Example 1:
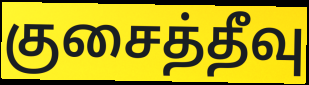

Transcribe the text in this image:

குசைத்தீவு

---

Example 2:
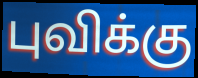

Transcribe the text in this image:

புவிக்கு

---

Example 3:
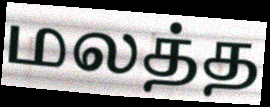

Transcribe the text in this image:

மலத்த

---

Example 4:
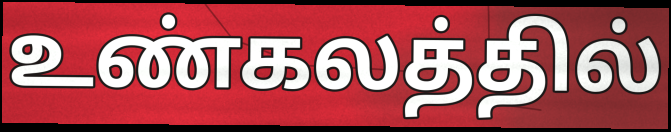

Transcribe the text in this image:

உண்கலத்தில்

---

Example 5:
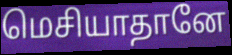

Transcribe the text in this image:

மெசியாதானே